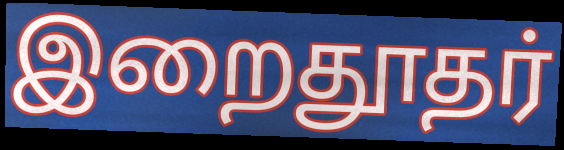
இறைதூதர்